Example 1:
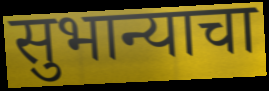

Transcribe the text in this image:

सुभान्याचा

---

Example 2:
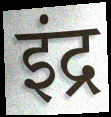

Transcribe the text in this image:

इंद्र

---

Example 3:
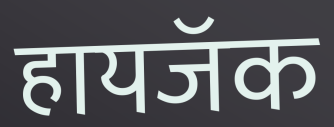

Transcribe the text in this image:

हायजॅक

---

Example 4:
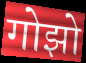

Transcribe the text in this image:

गोझो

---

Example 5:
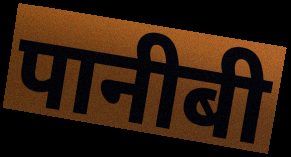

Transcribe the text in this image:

पानीबी